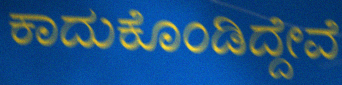
ಕಾದುಕೊಂಡಿದ್ದೇವೆ